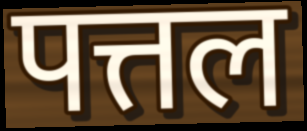
पत्तल